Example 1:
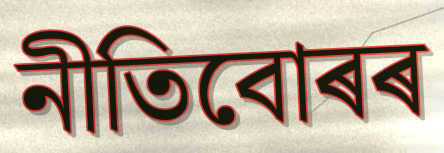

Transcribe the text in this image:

নীতিবোৰৰ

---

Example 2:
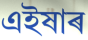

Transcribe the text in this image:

এইষাৰ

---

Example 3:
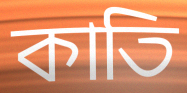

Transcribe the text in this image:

কাতি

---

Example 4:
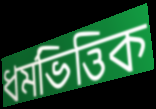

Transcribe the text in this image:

ধৰ্মভিত্তিক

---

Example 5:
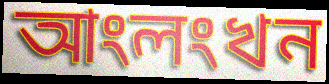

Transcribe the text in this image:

আংলংখন